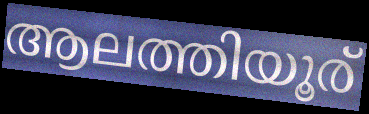
ആലത്തിയൂര്